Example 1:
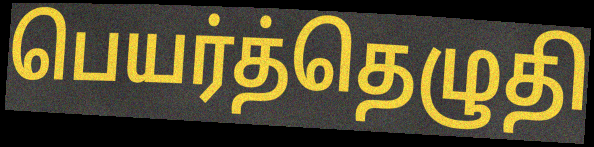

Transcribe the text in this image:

பெயர்த்தெழுதி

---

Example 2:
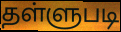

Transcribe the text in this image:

தள்ளுபடி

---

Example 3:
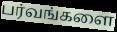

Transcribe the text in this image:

பர்வங்களை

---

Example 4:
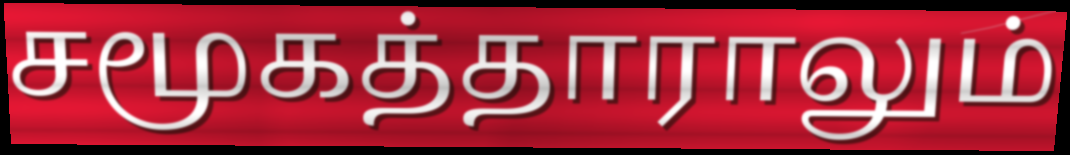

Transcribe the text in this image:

சமூகத்தாராலும்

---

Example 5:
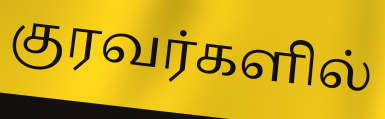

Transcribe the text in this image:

குரவர்களில்